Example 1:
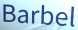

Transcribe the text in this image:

Barbel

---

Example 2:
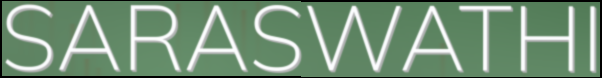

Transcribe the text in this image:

SARASWATHI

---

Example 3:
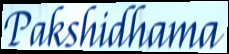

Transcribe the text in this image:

Pakshidhama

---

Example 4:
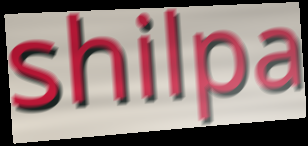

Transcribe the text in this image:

shilpa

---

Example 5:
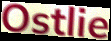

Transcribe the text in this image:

Ostlie